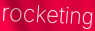
rocketing